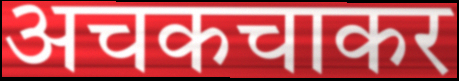
अचकचाकर